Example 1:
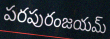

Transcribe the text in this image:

పరపురంజయమ్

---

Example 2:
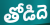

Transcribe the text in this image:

తోడిదె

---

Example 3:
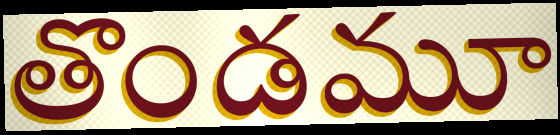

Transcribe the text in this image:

తొండమూ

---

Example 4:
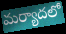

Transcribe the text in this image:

మర్యాదలో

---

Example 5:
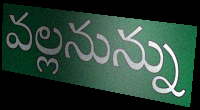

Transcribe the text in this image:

వల్లనున్ను